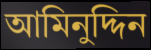
আমিনুদ্দিন